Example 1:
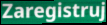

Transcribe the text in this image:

Zaregistruj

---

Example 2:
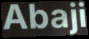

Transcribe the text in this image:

Abaji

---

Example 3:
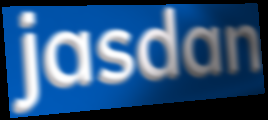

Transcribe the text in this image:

jasdan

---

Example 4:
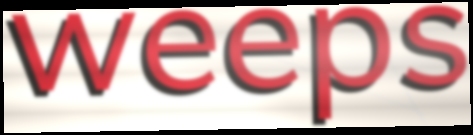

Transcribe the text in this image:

weeps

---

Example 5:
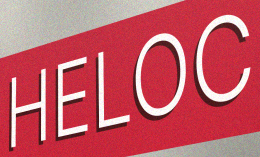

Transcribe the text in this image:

HELOC